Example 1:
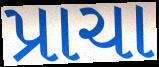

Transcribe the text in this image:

પ્રાચા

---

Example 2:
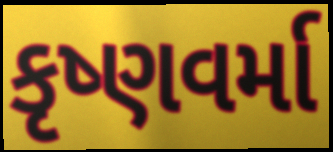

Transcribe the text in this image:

કૃષ્ણવર્મા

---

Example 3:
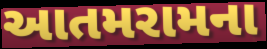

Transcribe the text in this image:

આતમરામના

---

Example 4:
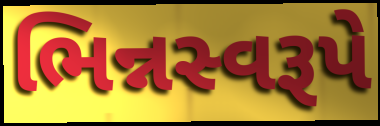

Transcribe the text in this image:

ભિન્નસ્વરૂપે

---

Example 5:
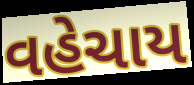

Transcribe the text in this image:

વહેચાય